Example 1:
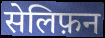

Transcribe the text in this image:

सेलिफ़न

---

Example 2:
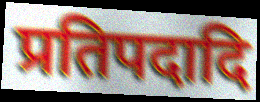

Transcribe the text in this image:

प्रतिपदादि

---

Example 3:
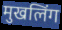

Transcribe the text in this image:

मुखलिंग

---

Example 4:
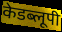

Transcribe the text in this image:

केडब्लूपी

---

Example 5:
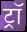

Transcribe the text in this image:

ट्रॉ